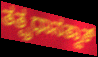
ತತ್ಪ್ರಧಾನತ್ವಾತ್